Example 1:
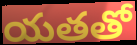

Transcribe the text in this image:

యతతో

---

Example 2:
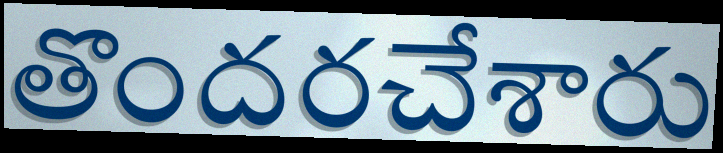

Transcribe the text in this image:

తొందరచేశారు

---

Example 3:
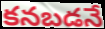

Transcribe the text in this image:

కనబడనే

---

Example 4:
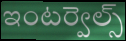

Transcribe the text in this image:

ఇంటర్వెల్స్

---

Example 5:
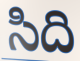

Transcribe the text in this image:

సిది